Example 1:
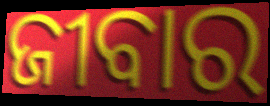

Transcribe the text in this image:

ଜୀବାର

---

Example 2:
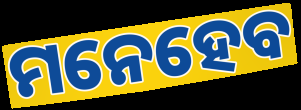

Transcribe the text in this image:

ମନେହେବ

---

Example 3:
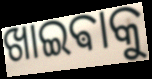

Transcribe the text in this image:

ଖାଇଵାକୁ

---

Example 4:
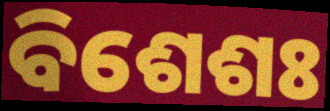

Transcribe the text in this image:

ବିଶେଶଃ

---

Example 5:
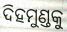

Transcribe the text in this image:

ଦିହମୁଣ୍ଡକୁ